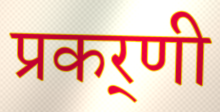
प्रकर्णी